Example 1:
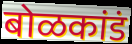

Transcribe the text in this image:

बोळकांडं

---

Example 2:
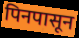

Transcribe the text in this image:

पिनपासून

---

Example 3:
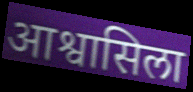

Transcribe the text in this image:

आश्वासिला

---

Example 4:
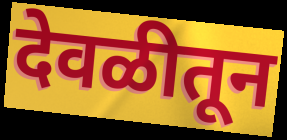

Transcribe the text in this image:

देवळीतून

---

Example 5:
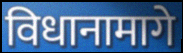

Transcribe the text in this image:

विधानामागे